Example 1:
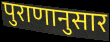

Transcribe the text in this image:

पुराणानुसार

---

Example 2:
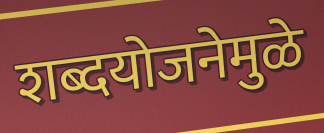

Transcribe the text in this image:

शब्दयोजनेमुळे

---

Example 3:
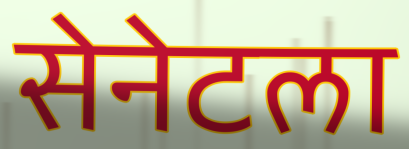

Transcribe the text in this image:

सेनेटला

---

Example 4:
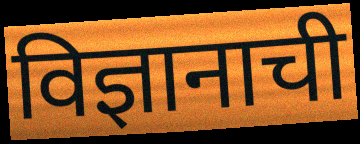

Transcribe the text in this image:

विज्ञानाची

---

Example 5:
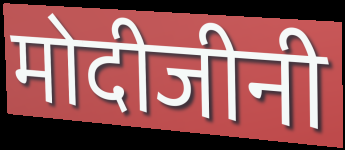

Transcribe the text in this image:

मोदीजीनी